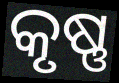
କୃଷ୍ଣ